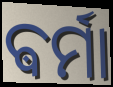
ଵର୍ମା